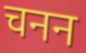
चनन